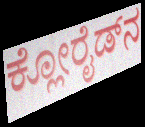
ಕ್ಲೋರೈಡ್‍ನ